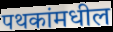
पथकांमधील